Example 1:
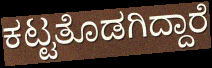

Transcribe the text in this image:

ಕಟ್ಟತೊಡಗಿದ್ದಾರೆ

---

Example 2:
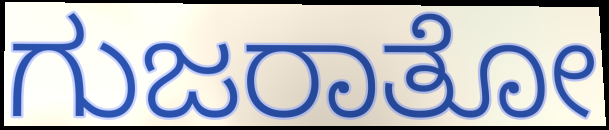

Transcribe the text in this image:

ಗುಜರಾತೋ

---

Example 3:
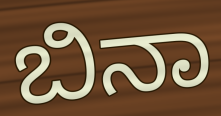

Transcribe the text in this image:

ಬಿನಾ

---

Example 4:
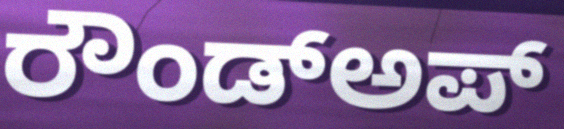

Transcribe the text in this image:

ರೌಂಡ್ಅಪ್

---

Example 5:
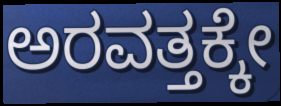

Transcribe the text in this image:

ಅರವತ್ತಕ್ಕೇ